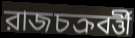
রাজচক্রবর্ত্তী